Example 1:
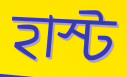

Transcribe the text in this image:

হাস্ট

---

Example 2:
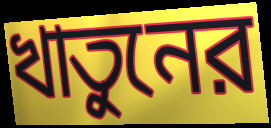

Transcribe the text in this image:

খাতুনের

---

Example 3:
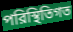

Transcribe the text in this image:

পরিস্থিতিগত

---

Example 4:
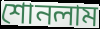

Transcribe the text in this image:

শোনলাম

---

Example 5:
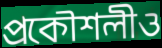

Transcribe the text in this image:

প্রকৌশলীও